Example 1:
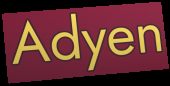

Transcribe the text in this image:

Adyen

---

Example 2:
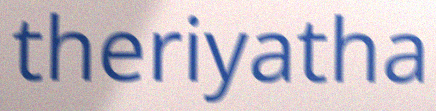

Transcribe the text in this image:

theriyatha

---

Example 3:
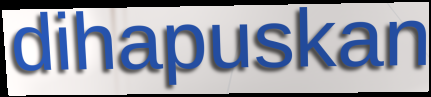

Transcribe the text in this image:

dihapuskan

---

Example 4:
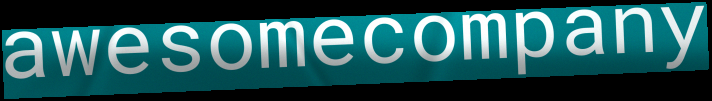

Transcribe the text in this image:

awesomecompany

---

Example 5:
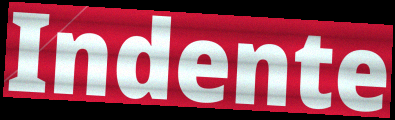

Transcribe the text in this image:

Indente